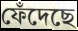
ফেঁদেছে